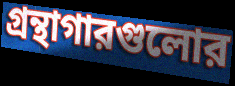
গ্রন্থাগারগুলোর